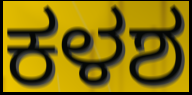
ಕಳಶ